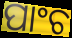
ପାଂଚ